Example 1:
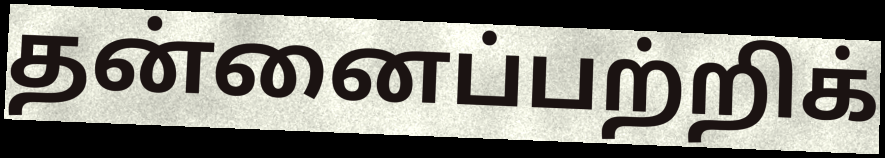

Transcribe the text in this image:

தன்னைப்பற்றிக்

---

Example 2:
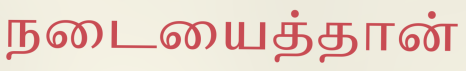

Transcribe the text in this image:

நடையைத்தான்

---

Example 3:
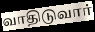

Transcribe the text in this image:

வாதிடுவார்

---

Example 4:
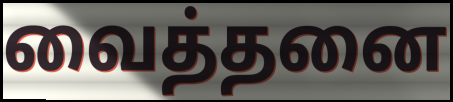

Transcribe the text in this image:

வைத்தனை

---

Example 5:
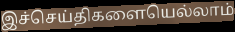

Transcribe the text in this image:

இச்செய்திகளையெல்லாம்